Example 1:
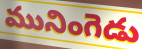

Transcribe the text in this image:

మునింగెడు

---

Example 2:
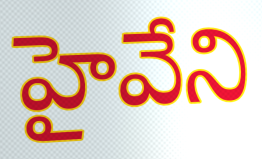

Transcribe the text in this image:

హైవేని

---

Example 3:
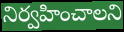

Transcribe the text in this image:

నిర్వహించాలని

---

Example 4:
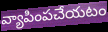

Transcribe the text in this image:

వ్యాపింపచేయటం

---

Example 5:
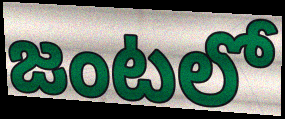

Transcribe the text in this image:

జంటలో